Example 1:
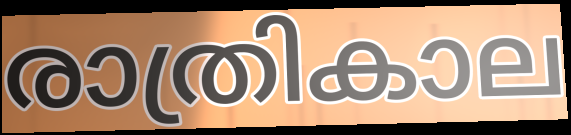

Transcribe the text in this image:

രാത്രികാല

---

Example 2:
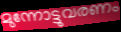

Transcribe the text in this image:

മുന്നോട്ടുവരണം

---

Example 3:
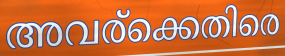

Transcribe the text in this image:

അവര്ക്കെതിരെ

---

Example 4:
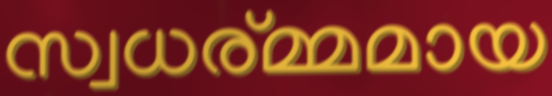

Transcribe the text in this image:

സ്വധര്മ്മമായ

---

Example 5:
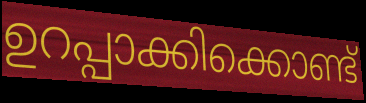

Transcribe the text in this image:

ഉറപ്പാക്കിക്കൊണ്ട്